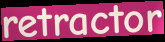
retractor